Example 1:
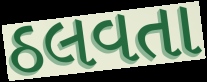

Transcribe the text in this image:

ઠલવતા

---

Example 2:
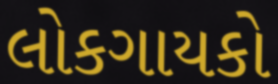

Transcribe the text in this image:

લોકગાયકો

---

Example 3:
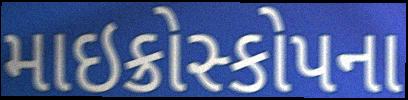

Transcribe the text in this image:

માઇક્રોસ્કોપના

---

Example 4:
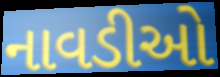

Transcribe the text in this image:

નાવડીઓ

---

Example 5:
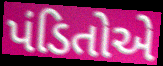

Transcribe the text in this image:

પંડિતોએ